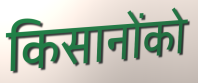
किसानोंको